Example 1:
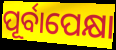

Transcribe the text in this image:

ପୂର୍ବାପେକ୍ଷା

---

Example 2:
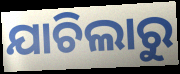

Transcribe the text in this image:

ଯାଚିଲାରୁ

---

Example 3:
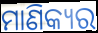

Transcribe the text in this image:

ମାଣିକ୍ୟର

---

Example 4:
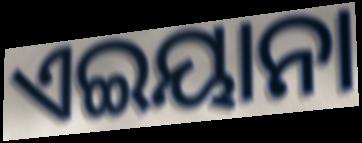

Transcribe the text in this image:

ଏଇୟାନା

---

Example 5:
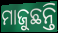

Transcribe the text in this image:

ମାଜୁଛନ୍ତି